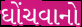
ઘોંચવાનો